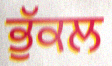
ਭੁੱਕਲ